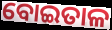
ବୋଇତାଳ